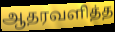
ஆதரவளித்த